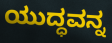
ಯುದ್ಧವನ್ನ